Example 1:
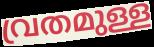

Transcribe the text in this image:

വ്രതമുള്ള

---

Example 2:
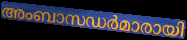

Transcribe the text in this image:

അംബാസഡർമാരായി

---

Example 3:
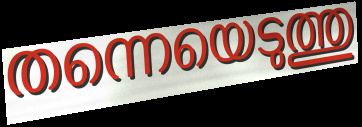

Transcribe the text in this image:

തന്നെയെടുത്തു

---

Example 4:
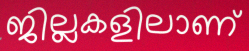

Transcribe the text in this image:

ജില്ലകളിലാണ്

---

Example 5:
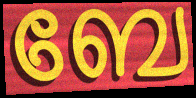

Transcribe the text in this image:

ബേ